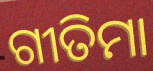
ଗୀତିମା